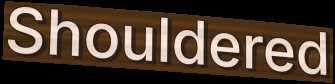
Shouldered